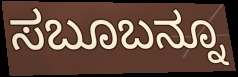
ಸಬೂಬನ್ನೂ